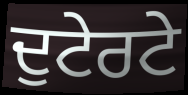
ਦੁਟੇਰਟੇ